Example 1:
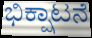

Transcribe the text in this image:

ಭಿಕ್ಷಾಟನೆ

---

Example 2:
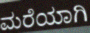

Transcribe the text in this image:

ಮರೆಯಾಗಿ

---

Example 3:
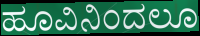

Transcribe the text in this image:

ಹೂವಿನಿಂದಲೂ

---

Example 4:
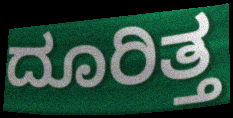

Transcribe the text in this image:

ದೂರಿತ್ತ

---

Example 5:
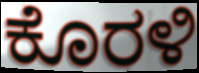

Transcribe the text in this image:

ಕೊರಳಿ